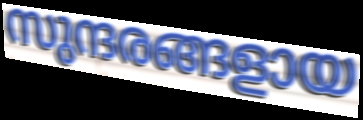
സുന്ദരങ്ങളായ